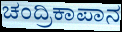
ಚಂದ್ರಿಕಾಪಾನ